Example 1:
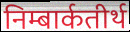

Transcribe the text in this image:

निम्बार्कतीर्थ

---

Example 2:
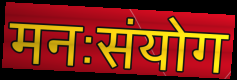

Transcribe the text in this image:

मनःसंयोग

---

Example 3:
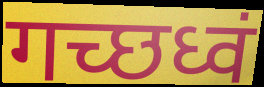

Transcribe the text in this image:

गच्छध्वं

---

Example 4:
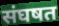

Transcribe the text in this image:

संघषत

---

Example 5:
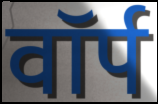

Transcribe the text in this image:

वॉर्प